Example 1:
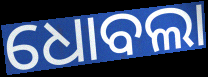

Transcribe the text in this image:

ଧୋବଲା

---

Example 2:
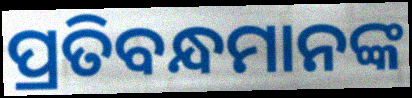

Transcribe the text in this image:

ପ୍ରତିବନ୍ଧମାନଙ୍କ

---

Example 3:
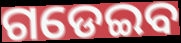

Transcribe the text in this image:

ଗଡେଇବ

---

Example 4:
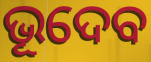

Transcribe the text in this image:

ଭୂଦେବ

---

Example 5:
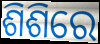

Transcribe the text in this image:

ଶିଶିରେ